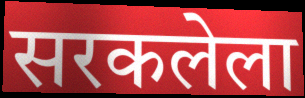
सरकलेला